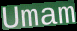
Umam